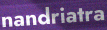
nandriatra